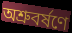
অশ্রুবর্ষণে